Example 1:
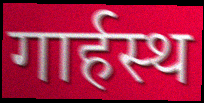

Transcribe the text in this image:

गार्हस्थ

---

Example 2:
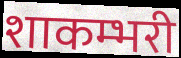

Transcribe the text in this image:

शाकम्भरी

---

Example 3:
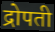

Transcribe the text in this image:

द्रोपती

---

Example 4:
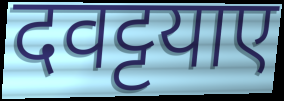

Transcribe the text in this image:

दवट्टयाए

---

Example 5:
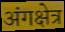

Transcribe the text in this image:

अंगक्षेत्र